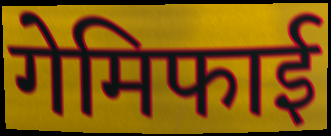
गेमिफाई